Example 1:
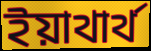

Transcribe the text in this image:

ইয়াথার্থ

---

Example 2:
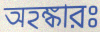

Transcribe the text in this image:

অহঙ্কারঃ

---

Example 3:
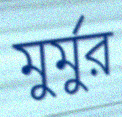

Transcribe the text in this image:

মুর্মুর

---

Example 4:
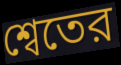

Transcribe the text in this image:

শ্বেতের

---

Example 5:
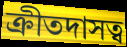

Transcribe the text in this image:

ক্রীতদাসত্ব